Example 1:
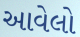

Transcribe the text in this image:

આવેલો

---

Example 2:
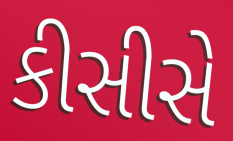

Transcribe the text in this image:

કીસીસે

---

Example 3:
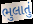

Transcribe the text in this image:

ભુલાતું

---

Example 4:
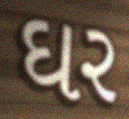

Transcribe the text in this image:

ઘર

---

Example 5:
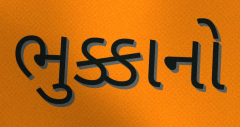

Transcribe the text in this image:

ભુક્કાનો